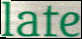
late